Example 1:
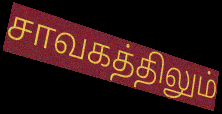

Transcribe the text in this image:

சாவகத்திலும்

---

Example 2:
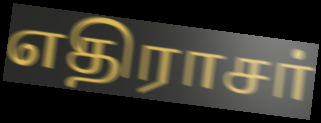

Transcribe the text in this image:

எதிராசர்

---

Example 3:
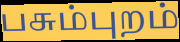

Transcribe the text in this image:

பசும்புறம்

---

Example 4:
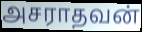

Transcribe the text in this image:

அசராதவன்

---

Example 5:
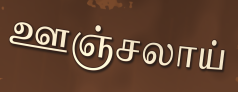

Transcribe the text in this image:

ஊஞ்சலாய்